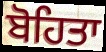
ਬੋਹਿਤਾ